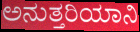
ಅನುತ್ತರಿಯಾನಿ